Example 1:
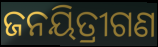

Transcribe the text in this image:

ଜନୟିତ୍ରୀଗଣ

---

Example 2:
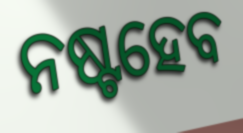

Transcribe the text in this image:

ନଷ୍ଟହେବ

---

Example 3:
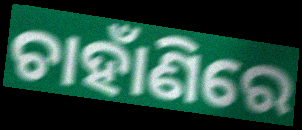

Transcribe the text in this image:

ଚାହାଁଣିରେ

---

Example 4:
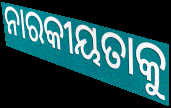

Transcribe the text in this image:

ନାରକୀୟତାକୁ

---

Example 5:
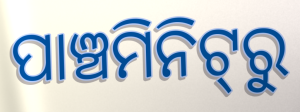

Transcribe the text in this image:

ପାଞ୍ଚମିନିଟ୍‌ରୁ